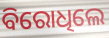
ବିରୋଧିଲେ